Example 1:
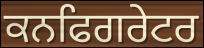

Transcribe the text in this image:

ਕਨਫਿਗਰੇਟਰ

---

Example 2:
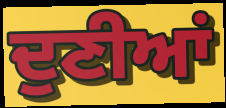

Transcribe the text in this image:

ਦੁਣੀਆਂ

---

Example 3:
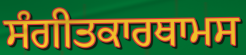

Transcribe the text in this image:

ਸੰਗੀਤਕਾਰਥਾਮਸ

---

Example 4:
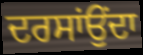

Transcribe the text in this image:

ਦਰਸਾਂਉਂਦਾ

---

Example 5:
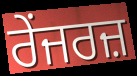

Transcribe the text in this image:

ਰੇਂਜਰਜ਼